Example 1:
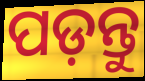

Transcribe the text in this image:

ପଡ଼ନ୍ତୁ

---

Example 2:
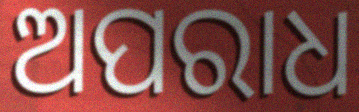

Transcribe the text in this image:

ଅପରାଧ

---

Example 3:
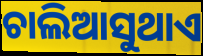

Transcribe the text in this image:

ଚାଲିଆସୁଥାଏ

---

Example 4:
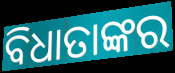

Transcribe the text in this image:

ବିଧାତାଙ୍କର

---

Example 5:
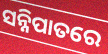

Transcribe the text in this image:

ସନ୍ନିପାତରେ